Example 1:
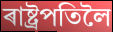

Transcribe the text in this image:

ৰাষ্ট্ৰপতিলৈ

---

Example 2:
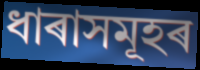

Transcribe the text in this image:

ধাৰাসমূহৰ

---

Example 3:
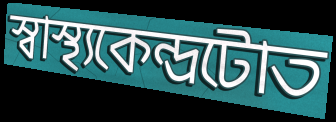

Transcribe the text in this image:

স্বাস্থ্যকেন্দ্ৰটোত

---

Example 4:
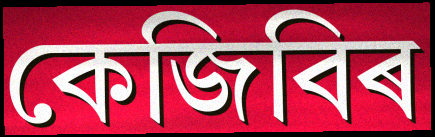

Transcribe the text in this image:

কেজিবিৰ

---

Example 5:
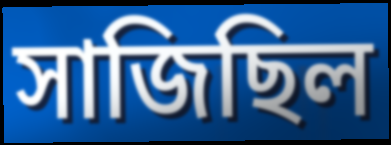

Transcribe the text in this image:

সাজিছিল